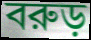
বরুড়